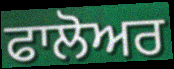
ਫਾਲੋਅਰ